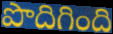
పొదిగింది